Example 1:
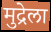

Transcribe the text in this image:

मुद्रेला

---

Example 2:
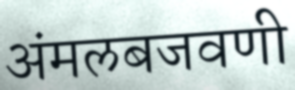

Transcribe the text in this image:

अंमलबजवणी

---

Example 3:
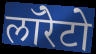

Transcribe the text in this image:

लॉरेटो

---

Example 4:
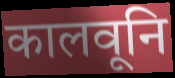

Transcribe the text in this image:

कालवूनि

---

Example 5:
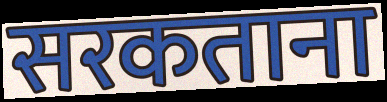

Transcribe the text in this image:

सरकताना